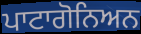
ਪਾਟਾਗੋਨਿਅਨ